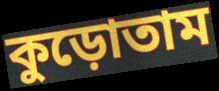
কুড়োতাম